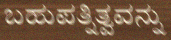
ಬಹುಪತ್ನಿತ್ವವನ್ನು